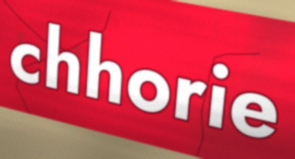
chhorie